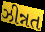
ઝીન્નત